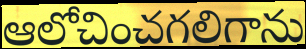
ఆలోచించగలిగాను